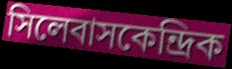
সিলেবাসকেন্দ্রিক